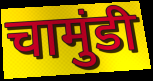
चामुंडी